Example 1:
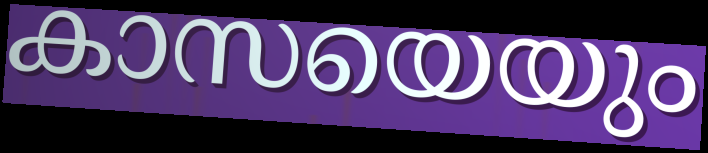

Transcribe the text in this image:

കാസയെയും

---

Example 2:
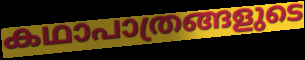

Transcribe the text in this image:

കഥാപാത്രങ്ങളുടെ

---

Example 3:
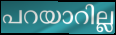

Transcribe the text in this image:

പറയാറില്ല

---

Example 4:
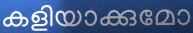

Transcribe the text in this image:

കളിയാക്കുമോ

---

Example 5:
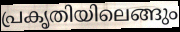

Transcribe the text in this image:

പ്രകൃതിയിലെങ്ങും